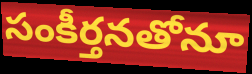
సంకీర్తనతోనూ